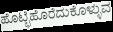
ಹೊಟ್ಟೆಹೊರೆದುಕೊಳ್ಳುವ